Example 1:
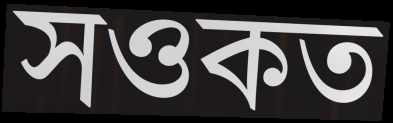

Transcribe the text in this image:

সওকত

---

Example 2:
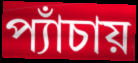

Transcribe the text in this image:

প্যাঁচায়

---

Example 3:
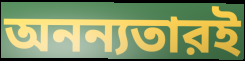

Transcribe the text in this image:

অনন্যতারই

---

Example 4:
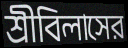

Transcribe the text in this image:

শ্রীবিলাসের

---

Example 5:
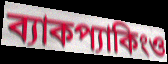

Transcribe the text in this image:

ব্যাকপ্যাকিংও